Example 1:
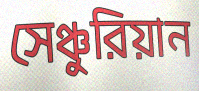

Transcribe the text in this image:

সেঞ্চুরিয়ান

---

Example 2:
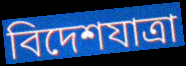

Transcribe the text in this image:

বিদেশযাত্রা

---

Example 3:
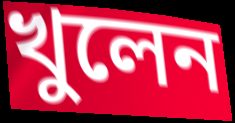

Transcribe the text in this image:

খুলেন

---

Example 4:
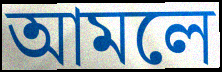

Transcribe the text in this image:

আমলে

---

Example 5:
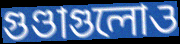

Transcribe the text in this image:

গুণ্ডাগুলোও